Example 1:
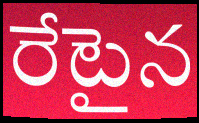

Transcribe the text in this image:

రేటైన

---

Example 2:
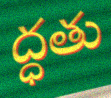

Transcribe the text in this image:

ద్ధతు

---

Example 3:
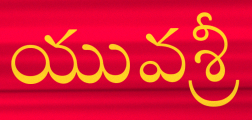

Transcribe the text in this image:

యువశ్రీ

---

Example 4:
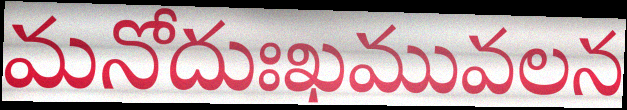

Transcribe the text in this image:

మనోదుఃఖమువలన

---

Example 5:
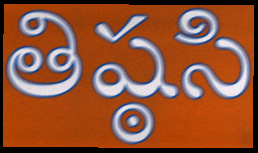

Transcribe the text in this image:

తిష్ఠసి